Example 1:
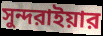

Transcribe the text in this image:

সুন্দরাইয়ার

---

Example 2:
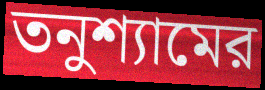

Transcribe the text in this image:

তনুশ্যামের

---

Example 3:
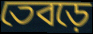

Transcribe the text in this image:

তেবড়ে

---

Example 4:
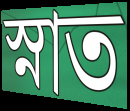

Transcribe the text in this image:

স্নাত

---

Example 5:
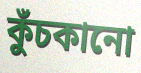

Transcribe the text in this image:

কুঁচকানো